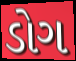
ડોગ